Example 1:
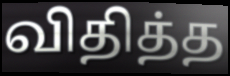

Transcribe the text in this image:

விதித்த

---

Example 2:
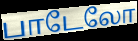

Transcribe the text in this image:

பாடேலோ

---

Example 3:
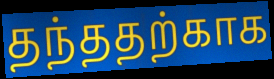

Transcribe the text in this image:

தந்ததற்காக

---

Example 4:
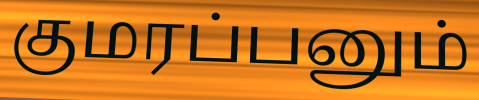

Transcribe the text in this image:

குமரப்பனும்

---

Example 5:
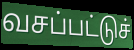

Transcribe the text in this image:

வசப்பட்டுச்